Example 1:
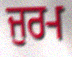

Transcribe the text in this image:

ਜੁਰ੍ਮ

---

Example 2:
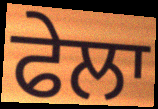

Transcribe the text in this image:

ਫੇਲਾ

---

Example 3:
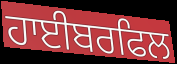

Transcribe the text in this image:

ਹਾਈਬਰਫਿਲ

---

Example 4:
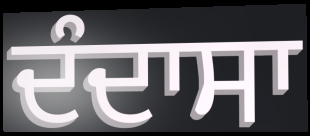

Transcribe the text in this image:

ਦੰਦਾਸਾ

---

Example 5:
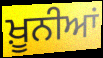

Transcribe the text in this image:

ਖ਼ੂਨੀਆਂ